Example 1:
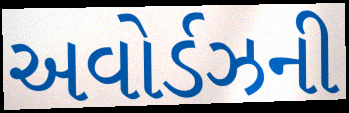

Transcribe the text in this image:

અવોર્ડઝની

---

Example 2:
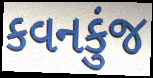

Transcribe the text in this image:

કવનકુંજ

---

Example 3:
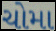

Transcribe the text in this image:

ચોમા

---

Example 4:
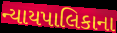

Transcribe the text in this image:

ન્યાયપાલિકાના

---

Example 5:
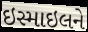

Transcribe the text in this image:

ઇસ્માઇલને